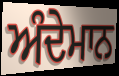
ਅੰਦੇਮਾਨ